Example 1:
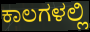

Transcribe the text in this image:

ಕಾಲಗಳಲ್ಲಿ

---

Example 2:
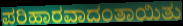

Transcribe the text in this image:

ಪರಿಹಾರವಾದಂತಾಯಿತು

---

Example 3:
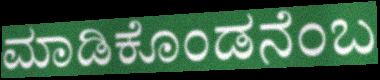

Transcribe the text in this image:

ಮಾಡಿಕೊಂಡನೆಂಬ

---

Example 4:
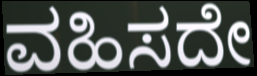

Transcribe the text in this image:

ವಹಿಸದೇ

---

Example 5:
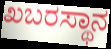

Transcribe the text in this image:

ಖಬರಸ್ಥಾನ